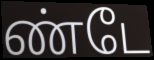
ண்டே